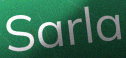
Sarla